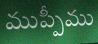
ముప్పీము